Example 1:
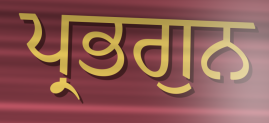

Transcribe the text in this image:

ਪ੍ਰਭਗੁਨ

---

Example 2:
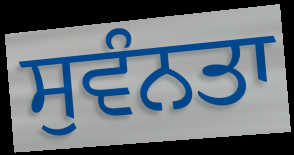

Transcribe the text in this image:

ਸੁਵੰਨਤਾ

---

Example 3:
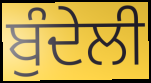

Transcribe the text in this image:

ਬੁੰਦੇਲੀ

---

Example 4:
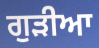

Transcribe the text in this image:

ਗੁੜੀਆ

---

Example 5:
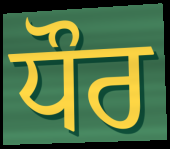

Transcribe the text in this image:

ਧੌਰ